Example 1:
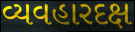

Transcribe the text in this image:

વ્યવહારદક્ષ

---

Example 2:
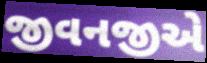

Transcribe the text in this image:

જીવનજીએ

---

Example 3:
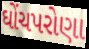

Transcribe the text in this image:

ઘોંચપરોણા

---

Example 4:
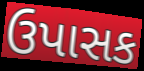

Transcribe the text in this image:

ઉપાસક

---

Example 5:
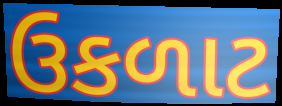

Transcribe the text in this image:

ઉકળાટ